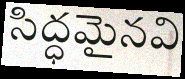
సిద్ధమైనవి